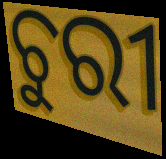
ଚୁରୀ